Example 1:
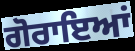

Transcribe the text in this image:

ਗੋਰਾਇਆਂ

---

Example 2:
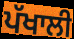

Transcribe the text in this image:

ਪੱਖਾਲੀ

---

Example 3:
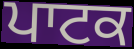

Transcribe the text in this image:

ਪਾਟਕ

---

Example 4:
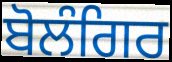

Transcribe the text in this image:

ਬੋਲੰਗਿਰ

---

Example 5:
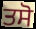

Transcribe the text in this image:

ਤਸੋ